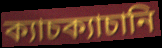
ক্যাচক্যাচানি